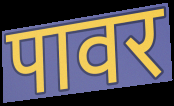
पावर